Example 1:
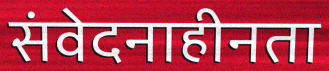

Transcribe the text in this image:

संवेदनाहीनता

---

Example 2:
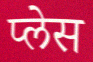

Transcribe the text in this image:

प्लेस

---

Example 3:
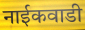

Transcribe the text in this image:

नाईकवाडी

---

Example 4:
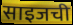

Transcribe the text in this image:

साइजची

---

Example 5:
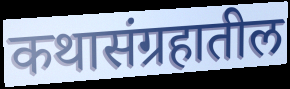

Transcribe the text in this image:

कथासंग्रहातील